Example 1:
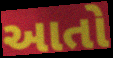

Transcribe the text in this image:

આતો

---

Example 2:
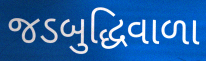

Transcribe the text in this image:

જડબુદ્ધિવાળા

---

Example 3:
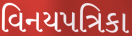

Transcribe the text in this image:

વિનયપત્રિકા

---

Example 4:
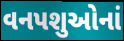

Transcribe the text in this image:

વનપશુઓનાં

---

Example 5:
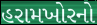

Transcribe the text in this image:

હરામખોરનો